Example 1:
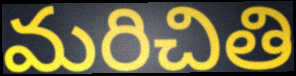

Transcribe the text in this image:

మరిచితి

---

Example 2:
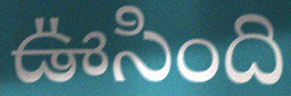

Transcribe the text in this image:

ఊసింది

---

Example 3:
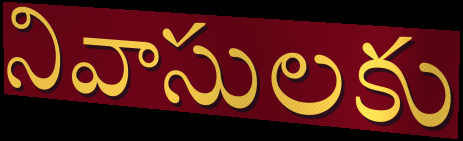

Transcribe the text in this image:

నివాసులకు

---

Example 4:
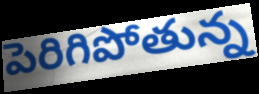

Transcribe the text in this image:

పెరిగిపోతున్న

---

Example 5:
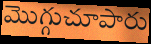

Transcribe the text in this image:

మొగ్గుచూపారు